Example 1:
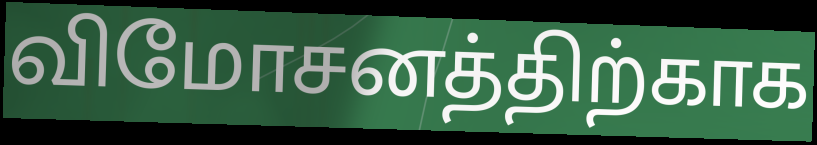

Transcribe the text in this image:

விமோசனத்திற்காக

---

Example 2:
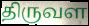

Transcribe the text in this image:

திருவள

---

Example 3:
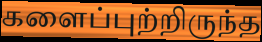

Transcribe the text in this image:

களைப்புற்றிருந்த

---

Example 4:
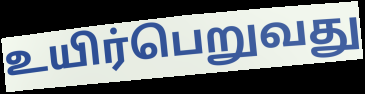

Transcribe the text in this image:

உயிர்பெறுவது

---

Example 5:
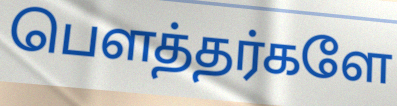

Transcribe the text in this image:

பௌத்தர்களே